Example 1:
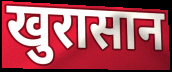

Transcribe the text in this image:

खुरासान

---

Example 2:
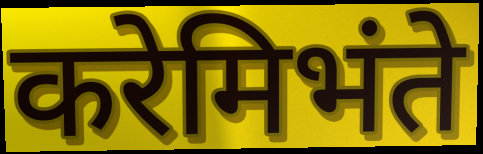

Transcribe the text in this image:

करेमिभंते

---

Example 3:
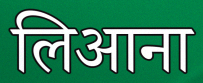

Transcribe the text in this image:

लिआना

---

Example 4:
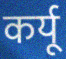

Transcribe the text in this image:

कर्यू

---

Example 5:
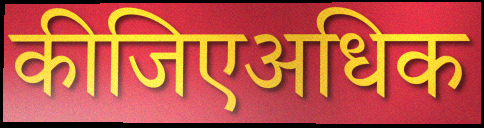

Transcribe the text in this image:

कीजिएअधिक